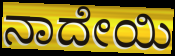
ನಾದೇಯಿ